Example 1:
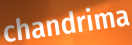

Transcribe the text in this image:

chandrima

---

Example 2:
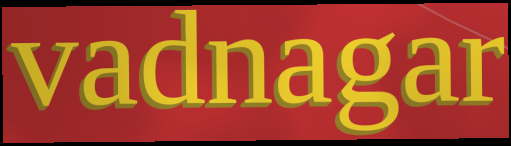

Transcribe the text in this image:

vadnagar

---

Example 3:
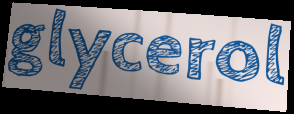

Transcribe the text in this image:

glycerol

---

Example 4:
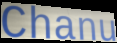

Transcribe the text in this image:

Chanu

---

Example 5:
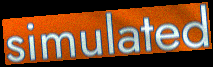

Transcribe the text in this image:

simulated